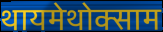
थायमेथोक्साम